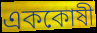
এককোষী